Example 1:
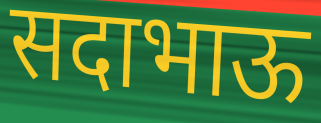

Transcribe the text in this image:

सदाभाऊ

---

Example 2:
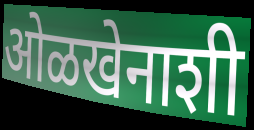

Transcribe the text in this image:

ओळखेनाशी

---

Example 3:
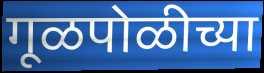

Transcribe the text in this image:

गूळपोळीच्या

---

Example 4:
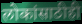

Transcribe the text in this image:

लोकांसाठीही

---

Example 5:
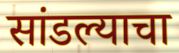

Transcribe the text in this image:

सांडल्याचा